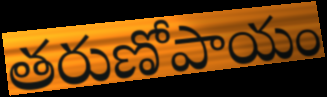
తరుణోపాయం